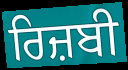
ਰਿਜ਼ਬੀ